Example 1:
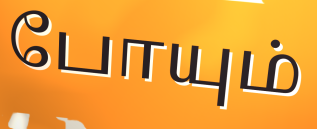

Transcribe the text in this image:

போயும்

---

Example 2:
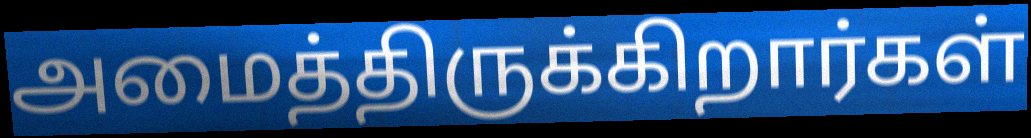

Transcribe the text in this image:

அமைத்திருக்கிறார்கள்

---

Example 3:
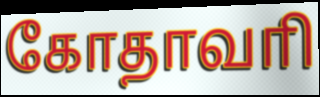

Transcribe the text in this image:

கோதாவரி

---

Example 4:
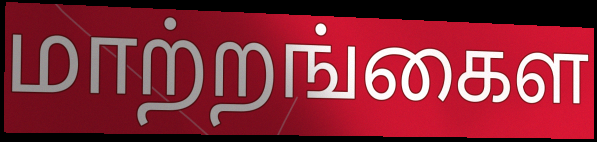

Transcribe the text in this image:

மாற்றங்கைள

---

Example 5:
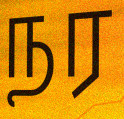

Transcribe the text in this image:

நர